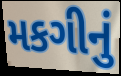
મકગીનું